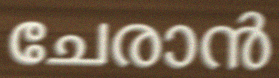
ചേരാൻ